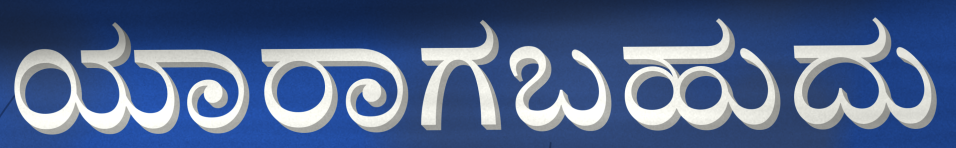
ಯಾರಾಗಬಹುದು